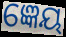
ଜ୍ଞେୟ